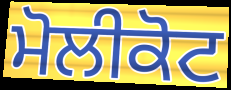
ਮੋਲੀਕੋਟ